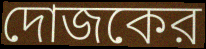
দোজকের